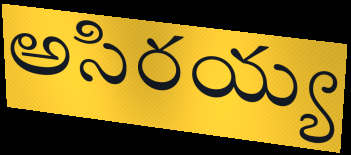
అసిరయ్య